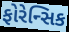
ફોરેન્સિક